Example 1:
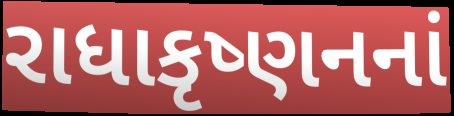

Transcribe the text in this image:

રાધાકૃષ્ણનનાં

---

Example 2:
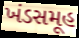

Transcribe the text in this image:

ખંડસમૂહ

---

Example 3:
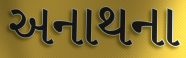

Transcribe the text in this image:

અનાથના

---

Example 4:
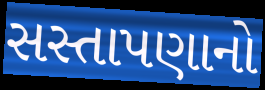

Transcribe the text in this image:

સસ્તાપણાનો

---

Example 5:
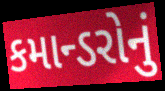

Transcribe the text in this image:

કમાન્ડરોનું